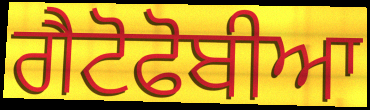
ਗੈਟੋਫੋਬੀਆ